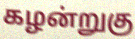
கழன்றுகு